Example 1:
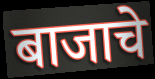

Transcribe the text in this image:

बाजाचे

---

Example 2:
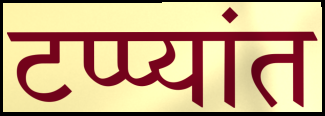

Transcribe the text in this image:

टप्प्यांत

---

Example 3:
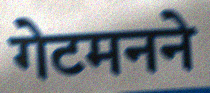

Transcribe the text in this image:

गेटमनने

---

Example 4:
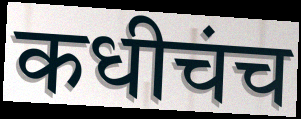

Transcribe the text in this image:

कधीचंच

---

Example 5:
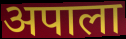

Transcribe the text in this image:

अपाला